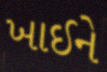
ખાઈને